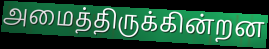
அமைத்திருக்கின்றன